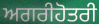
ਅਗਰੀਹੋਤਰੀ